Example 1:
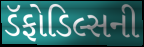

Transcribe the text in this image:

ડૅફોડિલ્સની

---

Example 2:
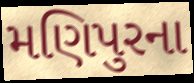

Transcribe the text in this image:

મણિપુરના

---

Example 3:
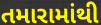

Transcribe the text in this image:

તમારામાંથી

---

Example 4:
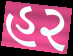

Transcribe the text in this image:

હર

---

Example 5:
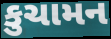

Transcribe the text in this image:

કુચામન